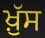
ਖ਼ੁੱਸ